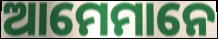
ଆମେମାନେ